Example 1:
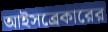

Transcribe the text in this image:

আইসব্রেকারের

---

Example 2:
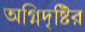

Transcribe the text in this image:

অগ্নিদৃষ্টির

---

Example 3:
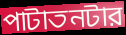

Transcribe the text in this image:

পাটাতনটার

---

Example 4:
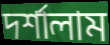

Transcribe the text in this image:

দর্শালাম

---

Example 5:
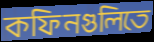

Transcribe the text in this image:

কফিনগুলিতে